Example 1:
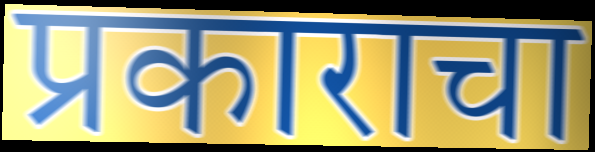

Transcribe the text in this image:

प्रकाराचा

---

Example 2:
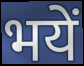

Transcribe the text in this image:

भयें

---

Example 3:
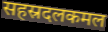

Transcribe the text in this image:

सहस्रदलकमल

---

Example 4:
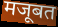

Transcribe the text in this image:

मजूबत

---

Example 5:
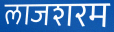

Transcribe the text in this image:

लाजशरम